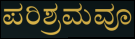
ಪರಿಶ್ರಮವೂ